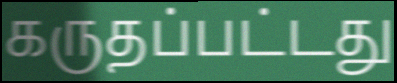
கருதப்பட்டது